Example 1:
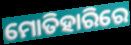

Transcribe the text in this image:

ମୋତିହାରିରେ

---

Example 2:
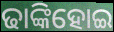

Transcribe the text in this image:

ଢାଙ୍କିହୋଇ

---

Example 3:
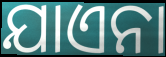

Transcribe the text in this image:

ଯାଏନା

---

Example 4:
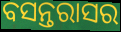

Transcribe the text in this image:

ବସନ୍ତରାସର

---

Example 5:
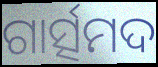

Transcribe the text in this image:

ଗାର୍ତ୍ସମଦ